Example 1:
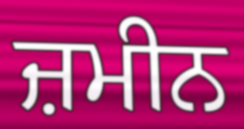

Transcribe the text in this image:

ਜ਼ਮੀਨ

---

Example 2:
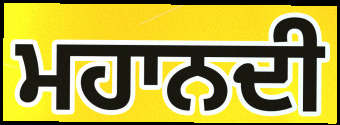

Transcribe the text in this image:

ਮਹਾਨਦੀ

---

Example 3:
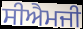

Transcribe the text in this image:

ਸੀਐਮਜੀ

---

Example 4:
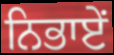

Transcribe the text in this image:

ਨਿਭਾਏਂ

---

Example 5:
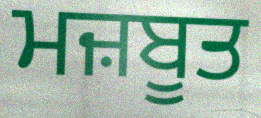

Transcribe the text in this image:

ਮਜ਼ਬੂਤ